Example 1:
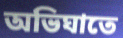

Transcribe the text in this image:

অভিঘাতে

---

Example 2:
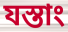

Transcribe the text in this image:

যস্তাং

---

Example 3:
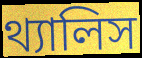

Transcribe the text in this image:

থ্যালিস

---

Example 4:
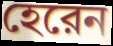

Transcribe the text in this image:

হেরেন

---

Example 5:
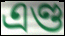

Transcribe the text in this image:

এণ্ড